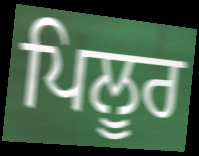
ਪਿਲੂਰ